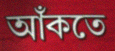
আঁকতে